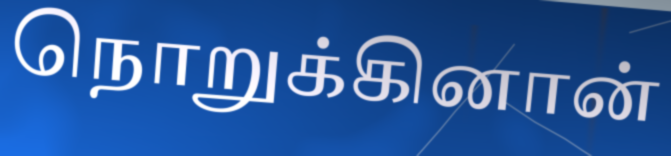
நொறுக்கினான்